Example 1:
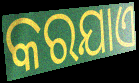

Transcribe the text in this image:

କରଯାଏ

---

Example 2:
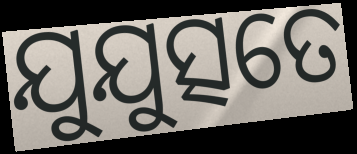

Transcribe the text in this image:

ଯୁଯୁତ୍ସତେ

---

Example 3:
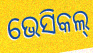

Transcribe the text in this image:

ଭେସିକଲ୍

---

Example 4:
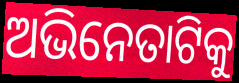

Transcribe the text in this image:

ଅଭିନେତାଟିକୁ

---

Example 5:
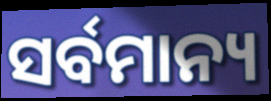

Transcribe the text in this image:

ସର୍ବମାନ୍ୟ